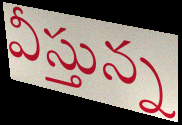
వీస్తున్న